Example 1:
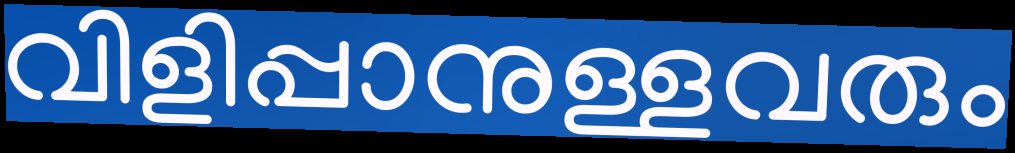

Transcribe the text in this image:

വിളിപ്പാനുള്ളവരും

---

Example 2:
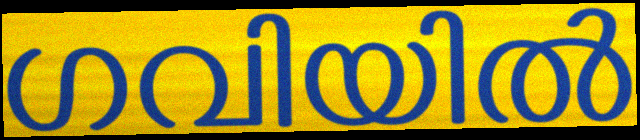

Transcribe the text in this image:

ഗവിയിൽ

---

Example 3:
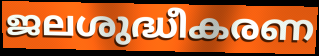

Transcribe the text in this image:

ജലശുദ്ധീകരണ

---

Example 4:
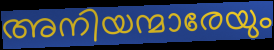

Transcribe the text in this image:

അനിയന്മാരേയും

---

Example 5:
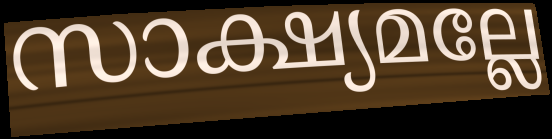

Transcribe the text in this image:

സാക്ഷ്യമല്ലേ